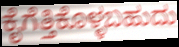
ಕೈಗೆತ್ತಿಕೊಳ್ಳಬಹುದು